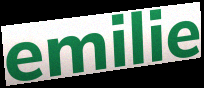
emilie